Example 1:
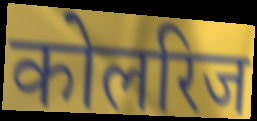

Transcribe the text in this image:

कोलरिज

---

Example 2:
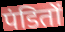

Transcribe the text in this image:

पंडितों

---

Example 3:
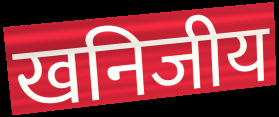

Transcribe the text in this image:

खनिजीय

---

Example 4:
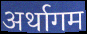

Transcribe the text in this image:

अर्थागम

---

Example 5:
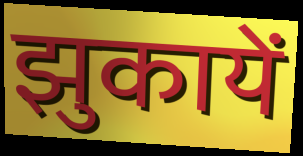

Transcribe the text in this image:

झुकायें